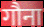
गौना